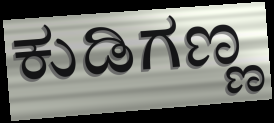
ಕುಡಿಗಣ್ಣ